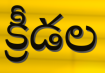
క్రీడల